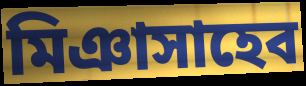
মিঞাসাহেব